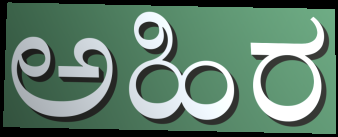
ಅಹಿರ